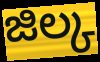
జిల్క